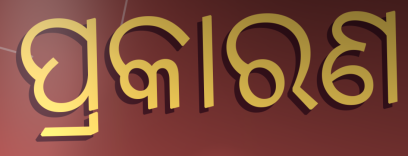
ପ୍ରକାରଣ